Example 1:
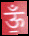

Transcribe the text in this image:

ऊँ॒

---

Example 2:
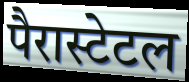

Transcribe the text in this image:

पैरास्टेटल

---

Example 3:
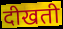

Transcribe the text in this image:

दीखती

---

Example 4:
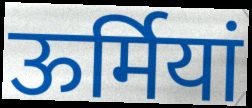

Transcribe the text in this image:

ऊर्मियां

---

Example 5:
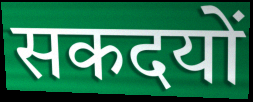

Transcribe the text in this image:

सकदयों